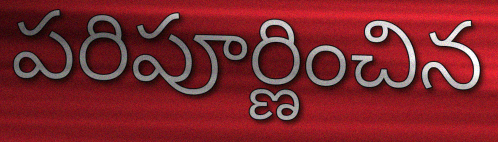
పరిపూర్ణించిన